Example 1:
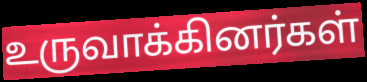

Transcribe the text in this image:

உருவாக்கினர்கள்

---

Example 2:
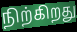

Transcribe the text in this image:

நிற்கிறது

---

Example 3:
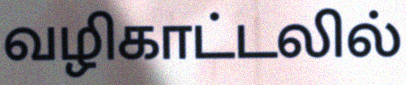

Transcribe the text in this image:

வழிகாட்டலில்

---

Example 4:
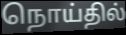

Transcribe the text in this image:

நொய்தில்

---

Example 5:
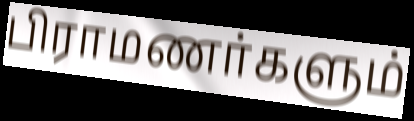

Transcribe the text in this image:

பிராமணர்களும்